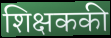
शिक्षककी